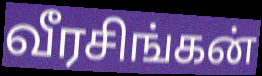
வீரசிங்கன்